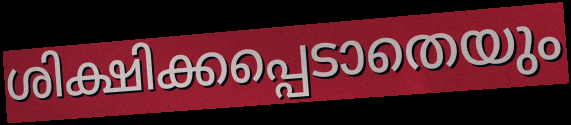
ശിക്ഷിക്കപ്പെടാതെയും